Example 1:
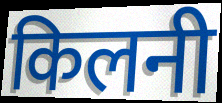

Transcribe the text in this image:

किलनी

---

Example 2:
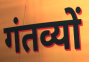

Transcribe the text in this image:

गंतव्यों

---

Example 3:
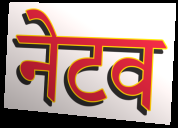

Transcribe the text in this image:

नेटव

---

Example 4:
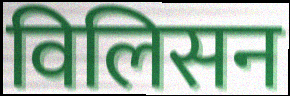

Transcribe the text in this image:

विलिसन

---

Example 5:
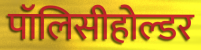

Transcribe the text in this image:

पॉलिसीहोल्डर